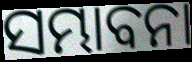
ସମ୍ଭାବନା